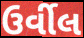
ઉર્વીલ